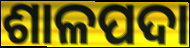
ଶାଳପଦା